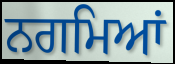
ਨਗਮਿਆਂ